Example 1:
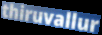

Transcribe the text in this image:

thiruvallur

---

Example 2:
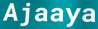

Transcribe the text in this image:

Ajaaya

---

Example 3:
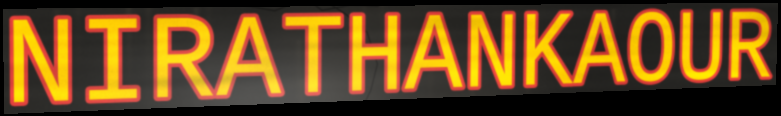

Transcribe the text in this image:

NIRATHANKAOUR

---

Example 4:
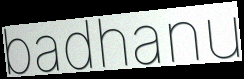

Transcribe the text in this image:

badhanu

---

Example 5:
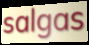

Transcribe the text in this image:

salgas